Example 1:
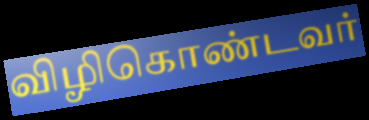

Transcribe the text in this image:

விழிகொண்டவர்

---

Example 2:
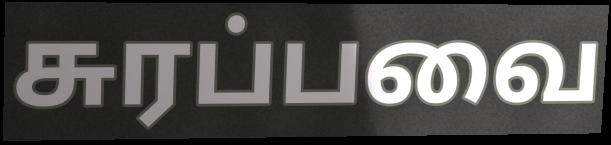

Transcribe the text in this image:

சுரப்பவை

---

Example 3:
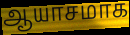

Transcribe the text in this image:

ஆயாசமாக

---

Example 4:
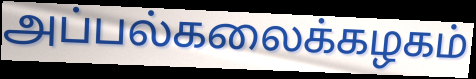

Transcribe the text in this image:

அப்பல்கலைக்கழகம்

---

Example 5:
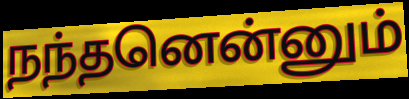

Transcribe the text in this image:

நந்தனென்னும்